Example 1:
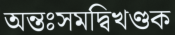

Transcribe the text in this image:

অন্তঃসমদ্বিখণ্ডক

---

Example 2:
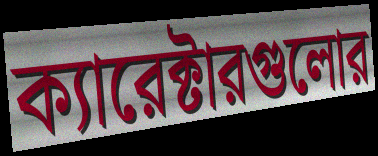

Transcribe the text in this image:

ক্যারেক্টারগুলোর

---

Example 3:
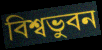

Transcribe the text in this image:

বিশ্বভুবন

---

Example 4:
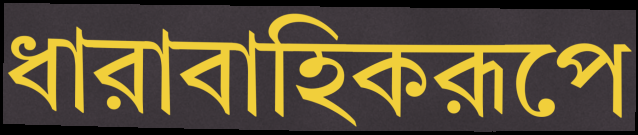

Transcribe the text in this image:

ধারাবাহিকরূপে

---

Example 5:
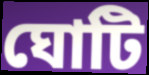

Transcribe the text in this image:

ঘোটি